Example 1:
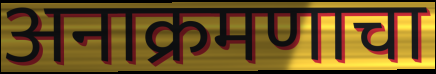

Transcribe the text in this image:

अनाक्रमणाचा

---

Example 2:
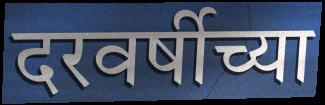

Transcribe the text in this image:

दरवर्षीच्या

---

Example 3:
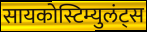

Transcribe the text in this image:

सायकोस्टिम्युलंट्स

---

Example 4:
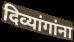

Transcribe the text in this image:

दिव्यांगांना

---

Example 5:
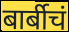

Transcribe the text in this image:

बार्बीचं